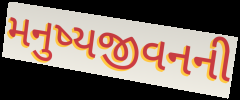
મનુષ્યજીવનની